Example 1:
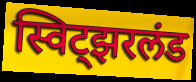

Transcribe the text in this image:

स्विट्झरलंड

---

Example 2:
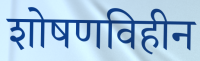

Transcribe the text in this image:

शोषणविहीन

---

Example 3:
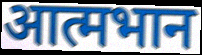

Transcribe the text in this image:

आत्मभान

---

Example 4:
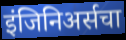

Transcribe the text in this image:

इंजिनिअर्सचा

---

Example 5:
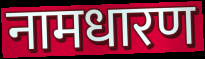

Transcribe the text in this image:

नामधारण